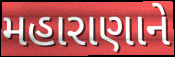
મહારાણાને